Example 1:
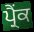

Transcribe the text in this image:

ਪ੍ਰੈਂਕ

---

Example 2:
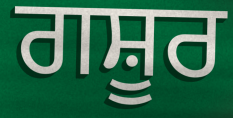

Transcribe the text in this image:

ਗਸ਼ੂਰ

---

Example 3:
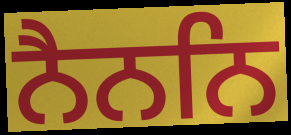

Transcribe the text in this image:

ਨੈਨਨਿ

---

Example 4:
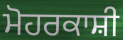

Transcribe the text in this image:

ਮੋਹਰਕਾਸ਼ੀ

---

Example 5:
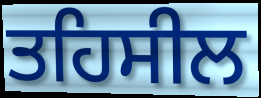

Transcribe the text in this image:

ਤਹਿਸੀਲ